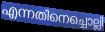
എന്നതിനെച്ചൊല്ലി